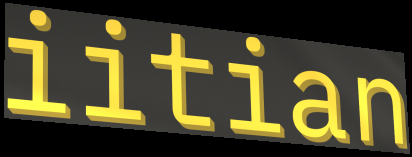
iitian